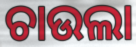
ଚାଉଲା